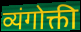
व्यंगोक्ती